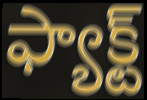
ఫ్యాక్ట్